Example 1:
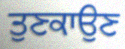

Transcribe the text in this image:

ਤੁਣਕਾਉਣ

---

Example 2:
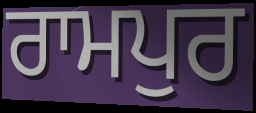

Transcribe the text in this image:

ਰਾਮਪੁਰ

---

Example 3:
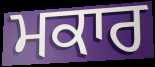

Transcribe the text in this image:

ਮਕਾਰ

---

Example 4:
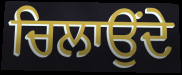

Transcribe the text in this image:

ਚਿਲਾਉਂਦੇ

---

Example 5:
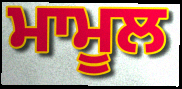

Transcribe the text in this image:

ਮਾਮੂਲ